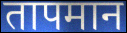
तापमान